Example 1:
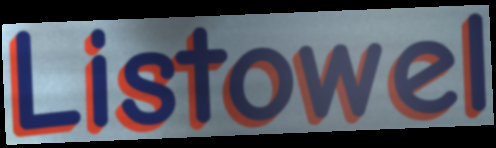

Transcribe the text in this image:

Listowel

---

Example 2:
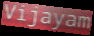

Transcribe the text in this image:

Vijayam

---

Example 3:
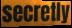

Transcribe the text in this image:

secretly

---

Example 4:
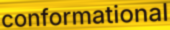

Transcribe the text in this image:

conformational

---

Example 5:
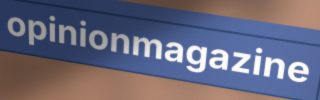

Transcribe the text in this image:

opinionmagazine